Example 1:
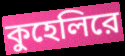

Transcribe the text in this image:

কুহেলিরে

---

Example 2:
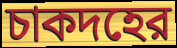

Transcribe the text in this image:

চাকদহের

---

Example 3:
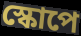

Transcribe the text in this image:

স্কোপে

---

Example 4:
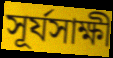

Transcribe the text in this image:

সূর্যসাক্ষী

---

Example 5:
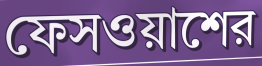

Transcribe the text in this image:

ফেসওয়াশের